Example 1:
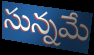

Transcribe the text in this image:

సున్నమే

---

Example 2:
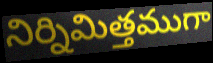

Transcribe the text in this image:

నిర్నిమిత్తముగా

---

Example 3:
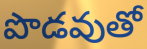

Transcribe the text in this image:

పొడవుతో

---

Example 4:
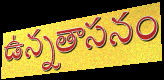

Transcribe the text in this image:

ఉన్నతాసనం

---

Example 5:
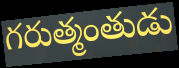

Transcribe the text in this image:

గరుత్మంతుడు